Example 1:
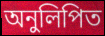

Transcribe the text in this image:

অনুলিপিত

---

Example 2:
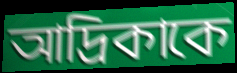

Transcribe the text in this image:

আদ্রিকাকে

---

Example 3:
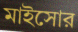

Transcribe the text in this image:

মাইসোর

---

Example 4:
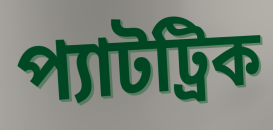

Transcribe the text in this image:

প্যাটট্রিক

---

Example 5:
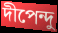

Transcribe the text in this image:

দীপেন্দু